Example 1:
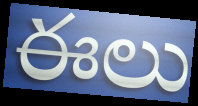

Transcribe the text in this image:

ఈలు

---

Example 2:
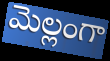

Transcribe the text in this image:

మెల్లంగా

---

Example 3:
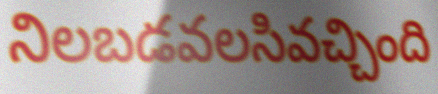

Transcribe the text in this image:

నిలబడవలసివచ్చింది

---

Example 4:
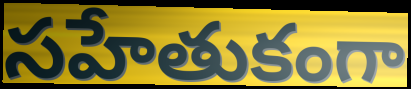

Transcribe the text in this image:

సహేతుకంగా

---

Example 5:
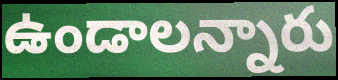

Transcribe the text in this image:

ఉండాలన్నారు